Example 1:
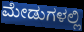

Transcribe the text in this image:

ಮೇಡುಗಳಲ್ಲಿ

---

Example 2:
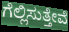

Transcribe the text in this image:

ಗೆಲ್ಲಿಸುತ್ತೇವೆ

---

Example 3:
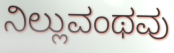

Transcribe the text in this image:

ನಿಲ್ಲುವಂಥವು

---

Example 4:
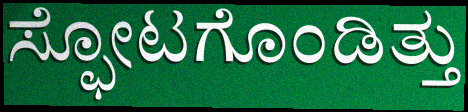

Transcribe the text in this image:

ಸ್ಫೋಟಗೊಂಡಿತ್ತು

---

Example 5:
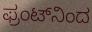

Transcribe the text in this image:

ಫ್ರಂಟ್‌ನಿಂದ